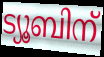
ട്യൂബിന്